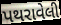
પથરાવેલી